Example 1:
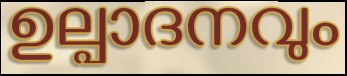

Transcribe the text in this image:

ഉല്പാദനവും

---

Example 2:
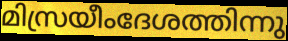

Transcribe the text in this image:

മിസ്രയീംദേശത്തിന്നു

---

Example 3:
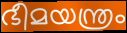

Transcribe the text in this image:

ഭീമയന്ത്രം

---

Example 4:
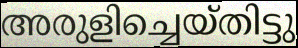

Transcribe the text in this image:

അരുളിച്ചെയ്തിട്ടു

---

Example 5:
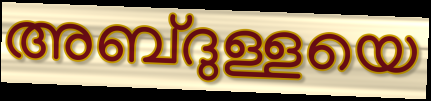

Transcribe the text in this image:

അബ്ദുള്ളയെ